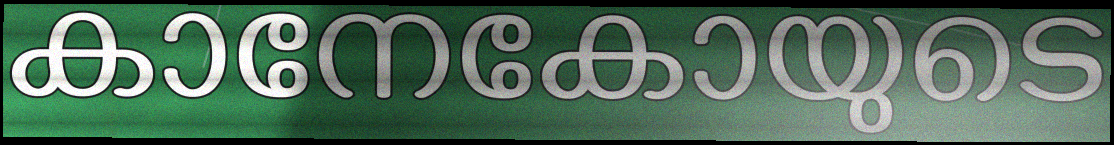
കാനേകോയുടെ